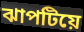
ঝাপটিয়ে